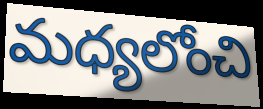
మధ్యలోంచి